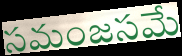
సమంజసమే